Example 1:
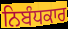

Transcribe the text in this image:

ਨਿਬੰਧਕਾਰ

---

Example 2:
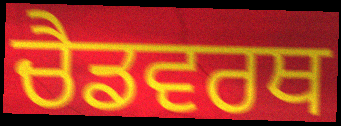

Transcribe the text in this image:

ਚੈਡਵਰਥ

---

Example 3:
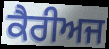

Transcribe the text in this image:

ਕੈਰੀਅਜ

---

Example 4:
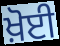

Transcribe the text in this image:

ਖ਼ੋਈ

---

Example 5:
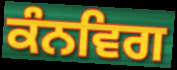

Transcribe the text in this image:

ਕੰਨਵਿਗ